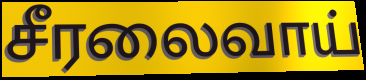
சீரலைவாய்